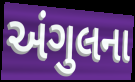
અંગુલના